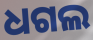
ଧଗଲ